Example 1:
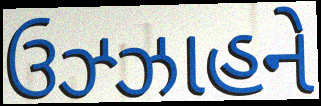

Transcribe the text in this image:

ઉઝ્ઝાહને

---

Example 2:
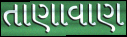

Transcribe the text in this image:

તાણાવાણ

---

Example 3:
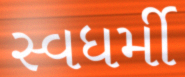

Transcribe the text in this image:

સ્વધર્મી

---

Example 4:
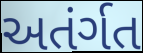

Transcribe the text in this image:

અતંર્ગત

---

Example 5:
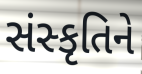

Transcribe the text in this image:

સંસ્કૃતિને